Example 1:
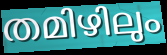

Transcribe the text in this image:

തമിഴിലും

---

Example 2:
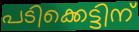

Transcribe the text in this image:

പടിക്കെട്ടിന്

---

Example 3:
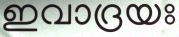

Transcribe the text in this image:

ഇവാദ്രയഃ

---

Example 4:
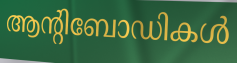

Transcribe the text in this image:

ആന്റിബോഡികൾ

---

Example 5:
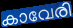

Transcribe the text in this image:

കാവേരി